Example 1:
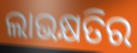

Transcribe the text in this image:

ଲାଭକ୍ଷତିର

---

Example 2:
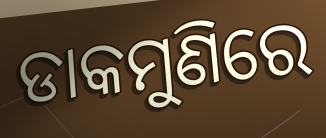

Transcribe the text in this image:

ଡାକମୁଣିରେ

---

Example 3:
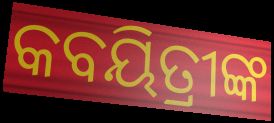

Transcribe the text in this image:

କବୟିତ୍ରୀଙ୍କ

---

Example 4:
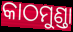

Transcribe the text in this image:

କାଠମୁଣ୍ଡା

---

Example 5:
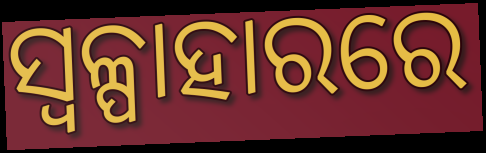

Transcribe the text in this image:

ସ୍ୱଳ୍ପାହାରରେ